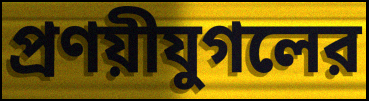
প্রণয়ীযুগলের